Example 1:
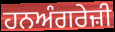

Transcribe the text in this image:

ਹਨਅੰਗਰੇਜ਼ੀ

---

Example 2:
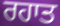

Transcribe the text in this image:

ਰਹਾਤ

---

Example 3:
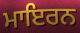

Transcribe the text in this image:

ਮਾਇਰਨ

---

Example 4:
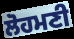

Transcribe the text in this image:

ਲੋਹਮਣੀ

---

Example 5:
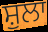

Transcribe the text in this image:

ਸ਼ੁਲਾ